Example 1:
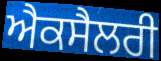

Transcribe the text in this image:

ਐਕਸੈਲਰੀ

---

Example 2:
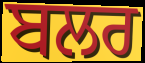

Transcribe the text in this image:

ਬਲਰ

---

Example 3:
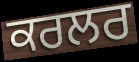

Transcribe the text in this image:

ਕਰਲਰ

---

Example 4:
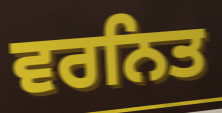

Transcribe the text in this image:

ਵਰਨਿਤ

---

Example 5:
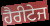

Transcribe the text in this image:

ਹੈਰੀਟੇਜ